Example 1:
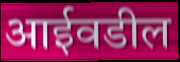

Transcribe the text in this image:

आईवडील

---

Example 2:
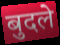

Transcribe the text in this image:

बुदले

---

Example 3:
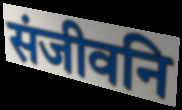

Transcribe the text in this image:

संजीवनि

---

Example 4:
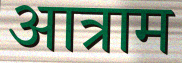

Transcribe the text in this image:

आत्राम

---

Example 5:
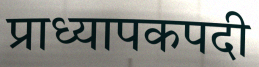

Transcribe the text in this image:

प्राध्यापकपदी